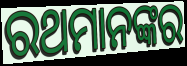
ରଥମାନଙ୍କର